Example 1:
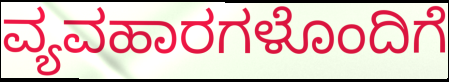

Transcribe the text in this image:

ವ್ಯವಹಾರಗಳೊಂದಿಗೆ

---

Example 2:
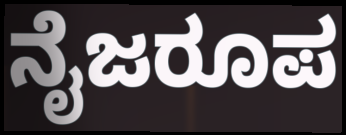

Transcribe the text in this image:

ನೈಜರೂಪ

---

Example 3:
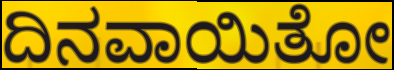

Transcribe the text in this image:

ದಿನವಾಯಿತೋ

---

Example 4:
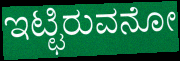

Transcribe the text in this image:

ಇಟ್ಟಿರುವನೋ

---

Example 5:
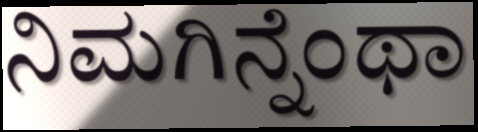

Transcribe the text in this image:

ನಿಮಗಿನ್ನೆಂಥಾ